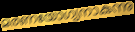
മരണയോഗ്യനാകുന്നു